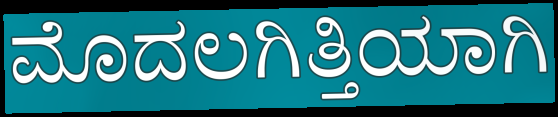
ಮೊದಲಗಿತ್ತಿಯಾಗಿ